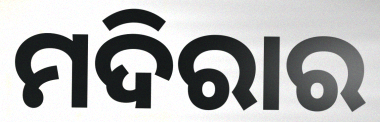
ମଦିରାର